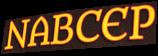
NABCEP